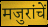
मजुरांचें